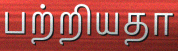
பற்றியதா